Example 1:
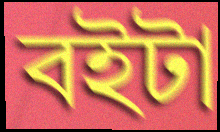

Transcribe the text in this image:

বইটা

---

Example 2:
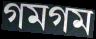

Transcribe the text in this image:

গমগম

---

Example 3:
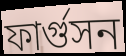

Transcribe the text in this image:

ফার্গুসন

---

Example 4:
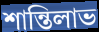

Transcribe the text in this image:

শান্তিলাভ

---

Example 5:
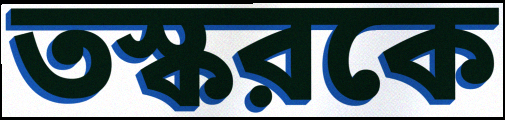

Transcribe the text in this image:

তস্করকে